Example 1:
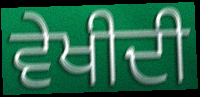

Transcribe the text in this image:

ਵੇਖੀਦੀ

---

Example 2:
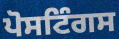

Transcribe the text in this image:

ਪੋਸਟਿੰਗਸ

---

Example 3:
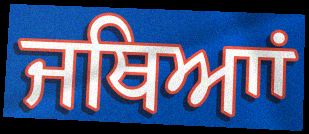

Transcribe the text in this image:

ਜਥਿਆਾਂ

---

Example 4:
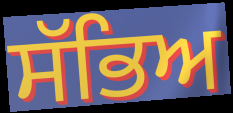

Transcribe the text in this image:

ਸੱਭਿਅ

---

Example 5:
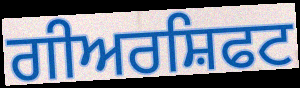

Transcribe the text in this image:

ਗੀਅਰਸ਼ਿਫਟ